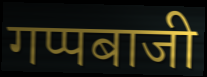
गप्पबाजी